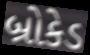
બ્રોકેડ